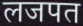
लजपत